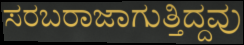
ಸರಬರಾಜಾಗುತ್ತಿದ್ದವು